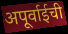
अपूर्वाईची